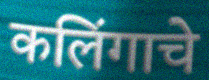
कलिंगाचे